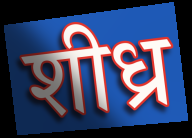
शीध्र